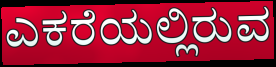
ಎಕರೆಯಲ್ಲಿರುವ